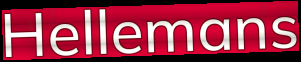
Hellemans